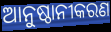
ଆନୁଷ୍ଠାନୀକରଣ